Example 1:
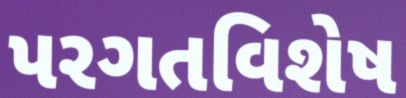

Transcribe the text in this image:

પરગતવિશેષ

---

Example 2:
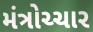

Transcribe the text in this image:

મંત્રોચ્ચાર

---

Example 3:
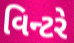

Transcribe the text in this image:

વિન્ટરે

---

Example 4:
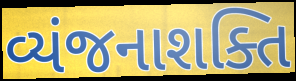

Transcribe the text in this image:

વ્યંજનાશક્તિ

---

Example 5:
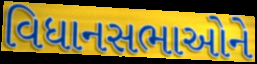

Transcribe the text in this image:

વિધાનસભાઓને